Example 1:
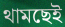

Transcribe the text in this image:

থামছেই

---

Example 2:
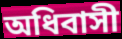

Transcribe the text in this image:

অধিবাসী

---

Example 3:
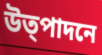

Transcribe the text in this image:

উত্পাদনে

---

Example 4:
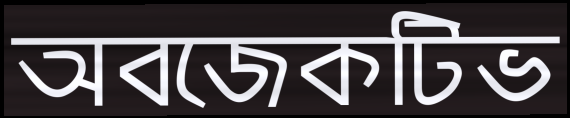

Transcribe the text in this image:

অবজেকটিভ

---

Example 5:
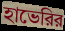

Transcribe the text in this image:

হাভেরির